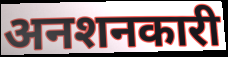
अनशनकारी